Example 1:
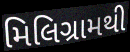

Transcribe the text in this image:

મિલિગ્રામથી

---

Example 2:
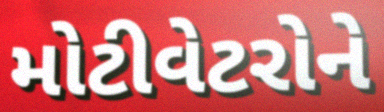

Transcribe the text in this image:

મોટીવેટરોને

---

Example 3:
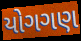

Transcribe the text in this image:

યોગગણ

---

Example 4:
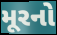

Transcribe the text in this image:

મૂરનો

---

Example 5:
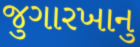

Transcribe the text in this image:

જુગારખાનુ